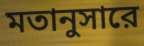
মতানুসারে